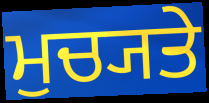
ਮੁਚ੍ਯਤੇ